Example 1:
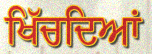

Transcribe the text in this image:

ਖਿੱਚਦਿਆਂ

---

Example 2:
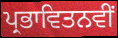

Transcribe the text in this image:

ਪ੍ਰਭਾਵਿਤਨਵੀਂ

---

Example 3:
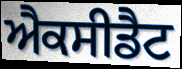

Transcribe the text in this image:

ਐਕਸੀਡੈਟ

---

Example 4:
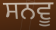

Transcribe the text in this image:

ਸਨਵੂ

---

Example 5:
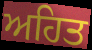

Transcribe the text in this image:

ਅਹਿਤ